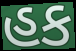
હક